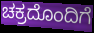
ಚಕ್ರದೊಂದಿಗೆ